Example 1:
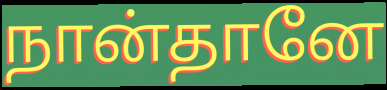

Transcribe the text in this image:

நான்தானே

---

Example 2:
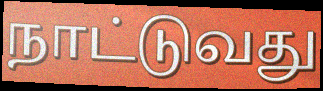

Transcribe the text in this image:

நாட்டுவது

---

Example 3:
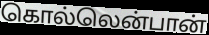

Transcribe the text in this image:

கொல்லென்பான்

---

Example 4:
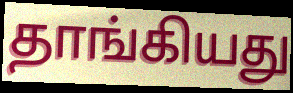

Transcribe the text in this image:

தாங்கியது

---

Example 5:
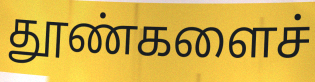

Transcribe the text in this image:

தூண்களைச்